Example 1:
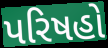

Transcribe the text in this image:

પરિષહો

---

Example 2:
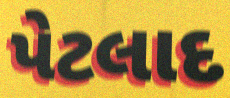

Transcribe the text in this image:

પેટલાદ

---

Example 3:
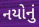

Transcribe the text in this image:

નયોનું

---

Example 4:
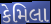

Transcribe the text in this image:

કેમિલા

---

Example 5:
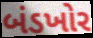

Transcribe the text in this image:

બંડખોર